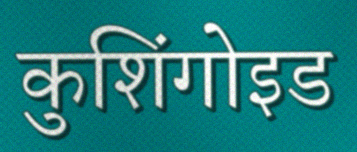
कुशिंगोइड